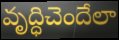
వృద్ధిచెందేలా